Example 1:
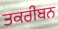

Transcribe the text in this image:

ਤਕਰੀਬਨ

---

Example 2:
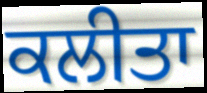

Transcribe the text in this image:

ਕਲੀਤਾ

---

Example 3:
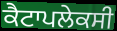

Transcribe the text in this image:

ਕੈਟਾਪਲੇਕਸੀ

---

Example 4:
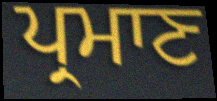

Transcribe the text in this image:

ਪ੍ਰਮਾਣ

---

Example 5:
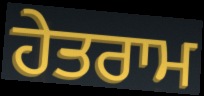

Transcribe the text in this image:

ਹੇਤਰਾਮ